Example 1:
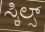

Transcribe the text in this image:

ಸ್ಕಿಲ್ಸ್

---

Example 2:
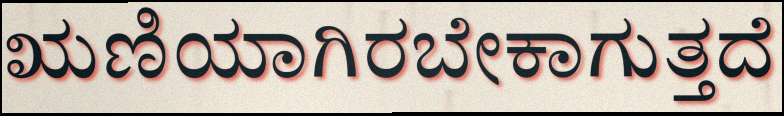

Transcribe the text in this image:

ಋಣಿಯಾಗಿರಬೇಕಾಗುತ್ತದೆ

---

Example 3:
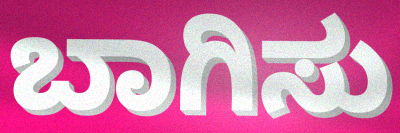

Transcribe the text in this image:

ಬಾಗಿಸು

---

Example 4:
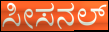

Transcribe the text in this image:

ಸೀಸನಲ್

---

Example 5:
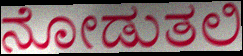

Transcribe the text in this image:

ನೋಡುತಲಿ